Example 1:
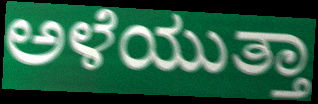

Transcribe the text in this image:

ಅಳೆಯುತ್ತಾ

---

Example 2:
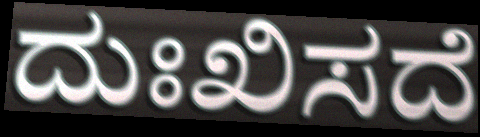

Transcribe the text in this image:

ದುಃಖಿಸದೆ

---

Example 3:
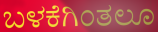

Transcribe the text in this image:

ಬಳಕೆಗಿಂತಲೂ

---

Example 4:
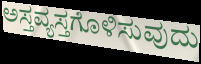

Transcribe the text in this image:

ಅಸ್ತವ್ಯಸ್ತಗೊಳಿಸುವುದು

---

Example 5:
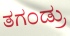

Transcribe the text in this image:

ತಗಂಡ್ರು